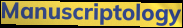
Manuscriptology